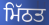
ਮਿੱਠਤ